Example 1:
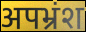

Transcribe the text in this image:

अपभ्रंश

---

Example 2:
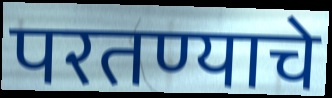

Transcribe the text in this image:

परतण्याचे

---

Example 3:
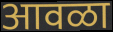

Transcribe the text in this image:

आवळा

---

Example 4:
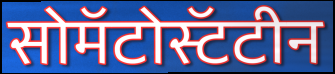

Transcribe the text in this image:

सोमॅटोस्टॅटीन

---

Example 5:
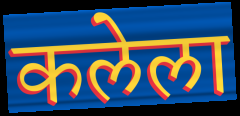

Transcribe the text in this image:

कलेला